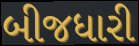
બીજધારી